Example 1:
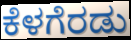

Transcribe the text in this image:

ಕೆಳಗೆರಡು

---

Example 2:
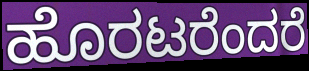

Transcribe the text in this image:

ಹೊರಟರೆಂದರೆ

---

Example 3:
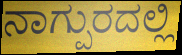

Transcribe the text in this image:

ನಾಗ್ಪುರದಲ್ಲಿ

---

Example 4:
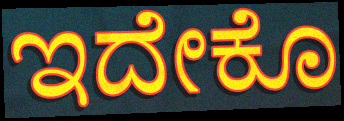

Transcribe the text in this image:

ಇದೇಕೊ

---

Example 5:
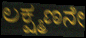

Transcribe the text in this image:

ಲಕ್ಷ್ಮಣನೇ